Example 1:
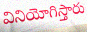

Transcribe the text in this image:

వినియోగిస్తారు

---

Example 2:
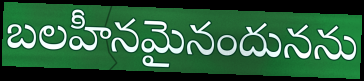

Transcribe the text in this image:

బలహీనమైనందునను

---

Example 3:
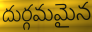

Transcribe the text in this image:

దుర్గమమైన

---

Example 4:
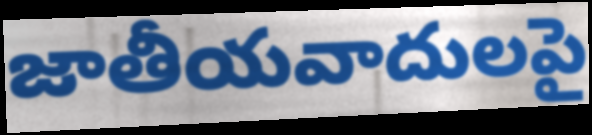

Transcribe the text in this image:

జాతీయవాదులపై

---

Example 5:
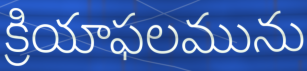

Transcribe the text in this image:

క్రియాఫలమును